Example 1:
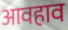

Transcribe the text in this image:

आवहाव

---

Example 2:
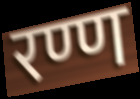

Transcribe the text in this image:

रण्ण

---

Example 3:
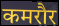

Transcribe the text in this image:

कमरौर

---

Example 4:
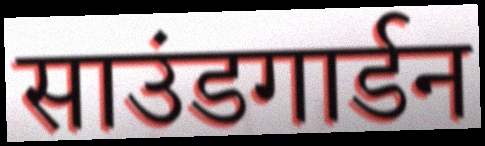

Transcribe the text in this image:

साउंडगार्डन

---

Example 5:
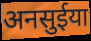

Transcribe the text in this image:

अनसुईया